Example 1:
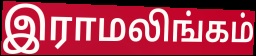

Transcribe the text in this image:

இராமலிங்கம்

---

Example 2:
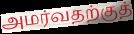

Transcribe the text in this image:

அமர்வதற்குத்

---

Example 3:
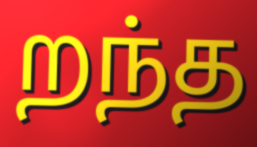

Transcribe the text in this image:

றந்த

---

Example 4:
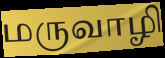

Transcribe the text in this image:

மருவாழி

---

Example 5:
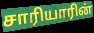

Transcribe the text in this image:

சாரியாரின்